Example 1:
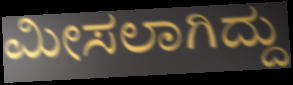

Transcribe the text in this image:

ಮೀಸಲಾಗಿದ್ದು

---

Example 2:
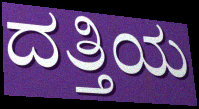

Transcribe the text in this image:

ದತ್ತಿಯ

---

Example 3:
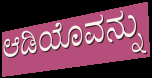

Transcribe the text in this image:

ಆಡಿಯೊವನ್ನು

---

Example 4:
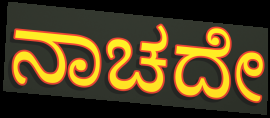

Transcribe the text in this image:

ನಾಚದೇ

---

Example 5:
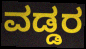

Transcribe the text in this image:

ವಡ್ಡರ